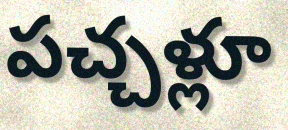
పచ్చళ్లూ